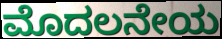
ಮೊದಲನೇಯ